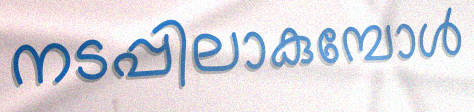
നടപ്പിലാകുമ്പോൾ